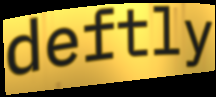
deftly